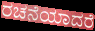
ರಚನೆಯಾದರೆ